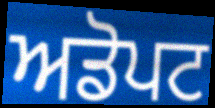
ਅਡੋਪਟ